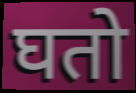
घतो